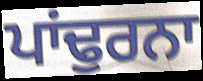
ਪਾਂਢੁਰਨਾ